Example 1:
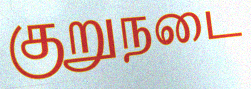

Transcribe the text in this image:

குறுநடை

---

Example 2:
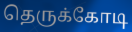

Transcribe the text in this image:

தெருக்கோடி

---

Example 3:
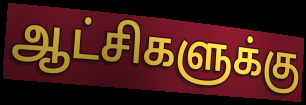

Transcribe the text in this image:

ஆட்சிகளுக்கு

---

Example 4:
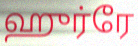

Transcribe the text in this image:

ஹுர்ரே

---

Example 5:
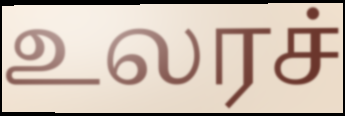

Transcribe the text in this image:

உலரச்